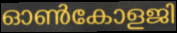
ഓൺകോളജി